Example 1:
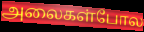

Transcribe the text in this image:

அலைகள்போல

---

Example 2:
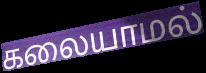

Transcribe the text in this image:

கலையாமல்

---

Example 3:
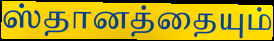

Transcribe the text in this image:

ஸ்தானத்தையும்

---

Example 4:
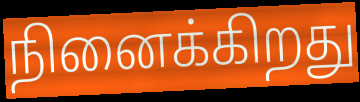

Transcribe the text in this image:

நினைக்கிறது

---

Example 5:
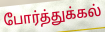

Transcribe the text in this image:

போர்த்துக்கல்